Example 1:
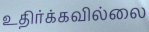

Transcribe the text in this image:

உதிர்க்கவில்லை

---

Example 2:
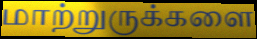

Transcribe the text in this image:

மாற்றுருக்களை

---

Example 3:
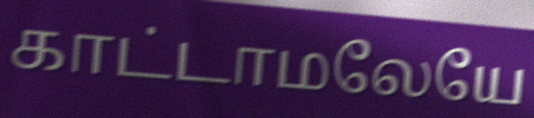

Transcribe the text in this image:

காட்டாமலேயே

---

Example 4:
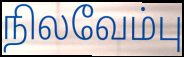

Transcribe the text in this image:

நிலவேம்பு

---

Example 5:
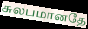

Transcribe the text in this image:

சுலபமானதே